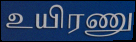
உயிரணு